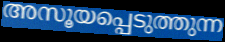
അസൂയപ്പെടുത്തുന്ന